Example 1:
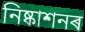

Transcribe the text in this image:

নিষ্কাশনৰ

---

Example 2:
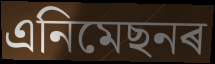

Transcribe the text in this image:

এনিমেছনৰ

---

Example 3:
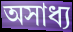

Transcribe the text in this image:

অসাধ্য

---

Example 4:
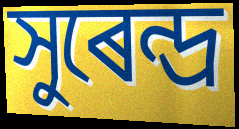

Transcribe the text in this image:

সুৰেন্দ্ৰ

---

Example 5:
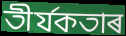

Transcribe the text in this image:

তীৰ্যকতাৰ